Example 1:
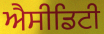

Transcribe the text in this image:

ਐਸੀਡਿਟੀ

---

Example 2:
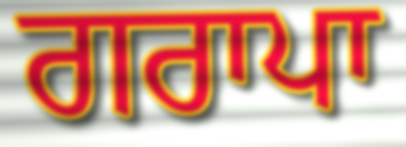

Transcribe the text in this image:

ਗਰਾਪਾ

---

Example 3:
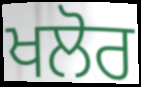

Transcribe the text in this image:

ਖਲੋਰ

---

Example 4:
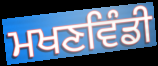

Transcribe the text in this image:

ਮਖਣਵਿੰਡੀ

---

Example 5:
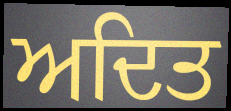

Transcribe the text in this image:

ਅਦਿਤ